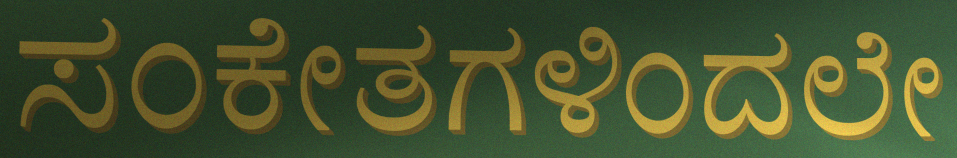
ಸಂಕೇತಗಳಿಂದಲೇ